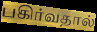
பகிர்வதால்